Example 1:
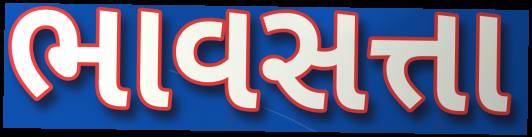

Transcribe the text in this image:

ભાવસત્તા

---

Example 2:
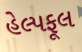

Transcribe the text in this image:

હેલ્પફૂલ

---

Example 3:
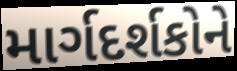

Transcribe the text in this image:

માર્ગદર્શકોને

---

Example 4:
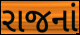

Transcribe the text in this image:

રાજનાં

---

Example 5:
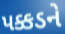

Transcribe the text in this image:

પક્કડને